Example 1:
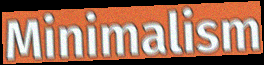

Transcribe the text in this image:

Minimalism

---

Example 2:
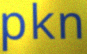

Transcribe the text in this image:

pkn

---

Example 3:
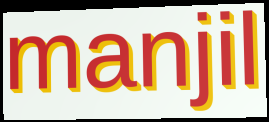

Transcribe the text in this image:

manjil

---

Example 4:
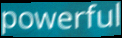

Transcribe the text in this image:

powerful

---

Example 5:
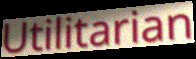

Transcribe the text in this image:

Utilitarian